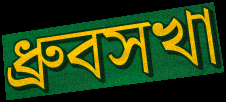
ধ্রুবসখা